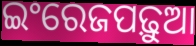
ଇଂରେଜପଢ଼ୁଆ